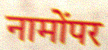
नामोंपर